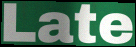
Late